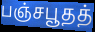
பஞ்சபூதத்